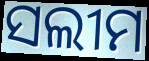
ସଲୀମ